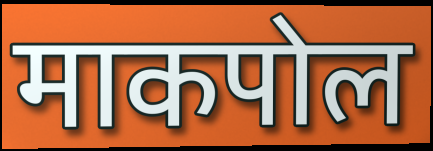
माकपोल